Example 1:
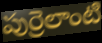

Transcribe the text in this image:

పుర్రెలాంటి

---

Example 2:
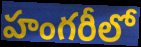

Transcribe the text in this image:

హంగరీలో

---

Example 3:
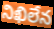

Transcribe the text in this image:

నిఖిలేన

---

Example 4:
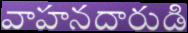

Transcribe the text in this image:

వాహనదారుడి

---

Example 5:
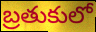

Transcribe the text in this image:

బ్రతుకులో